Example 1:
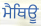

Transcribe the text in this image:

ਮੈਥਿਊ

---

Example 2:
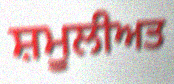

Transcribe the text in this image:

ਸ਼ਮੂਲੀਅਤ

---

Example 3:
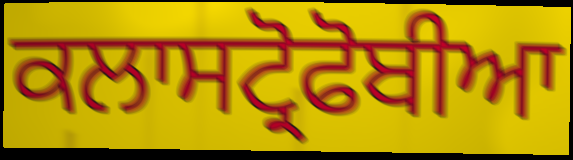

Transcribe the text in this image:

ਕਲਾਸਟ੍ਰੋਫੋਬੀਆ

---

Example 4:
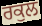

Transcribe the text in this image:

ਰਕੁਲ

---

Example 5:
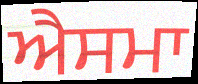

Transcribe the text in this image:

ਐਸਮਾ